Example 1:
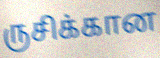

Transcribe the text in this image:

ருசிக்கான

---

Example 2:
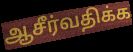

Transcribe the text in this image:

ஆசீர்வதிக்க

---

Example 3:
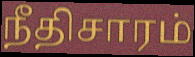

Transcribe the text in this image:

நீதிசாரம்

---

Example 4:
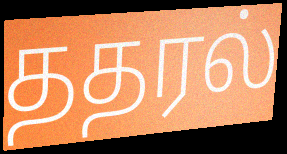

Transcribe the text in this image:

ததரல்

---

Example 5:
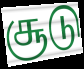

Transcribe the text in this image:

சூடு